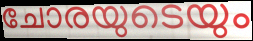
ചോരയുടെയും